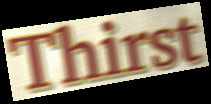
Thirst